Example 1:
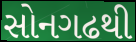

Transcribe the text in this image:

સોનગઢથી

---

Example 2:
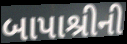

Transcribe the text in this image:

બાપાશ્રીની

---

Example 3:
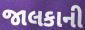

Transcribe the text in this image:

જાલકાની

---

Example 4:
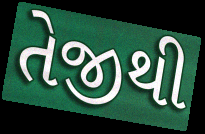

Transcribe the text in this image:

તેજીથી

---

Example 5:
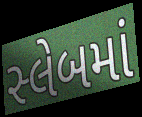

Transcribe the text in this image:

સ્લેબમાં